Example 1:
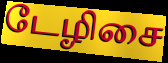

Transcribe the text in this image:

டேழிசை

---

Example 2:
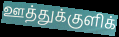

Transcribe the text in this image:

ஊத்துக்குளிக்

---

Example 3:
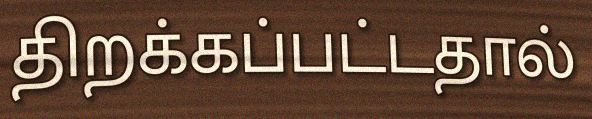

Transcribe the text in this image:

திறக்கப்பட்டதால்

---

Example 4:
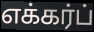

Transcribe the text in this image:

எக்கர்ப்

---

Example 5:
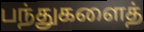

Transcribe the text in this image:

பந்துகளைத்